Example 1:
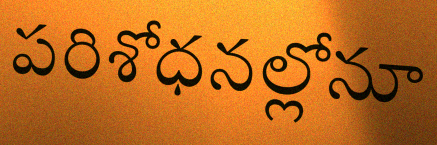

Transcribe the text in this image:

పరిశోధనల్లోనూ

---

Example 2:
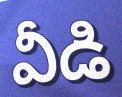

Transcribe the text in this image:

వీడి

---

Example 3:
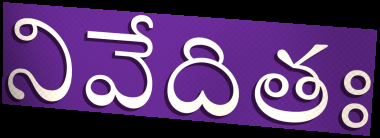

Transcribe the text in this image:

నివేదితః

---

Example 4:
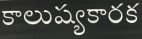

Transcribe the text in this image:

కాలుష్యకారక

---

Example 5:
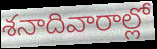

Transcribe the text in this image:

శనాదివారాల్లో